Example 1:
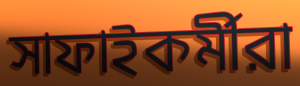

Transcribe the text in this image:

সাফাইকর্মীরা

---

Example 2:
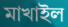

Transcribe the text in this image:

মাখাইল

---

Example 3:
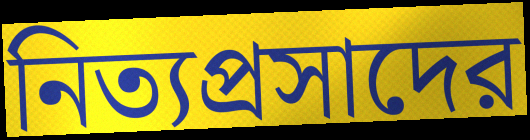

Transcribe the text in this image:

নিত্যপ্রসাদের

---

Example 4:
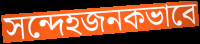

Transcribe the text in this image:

সন্দেহজনকভাবে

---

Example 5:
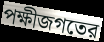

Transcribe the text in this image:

পক্ষীজগতের